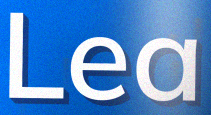
Lea